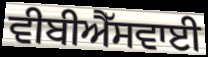
ਵੀਬੀਐੱਸਵਾਈ